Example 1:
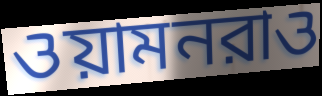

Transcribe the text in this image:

ওয়ামনরাও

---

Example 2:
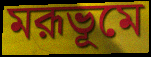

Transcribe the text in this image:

মরূভূমে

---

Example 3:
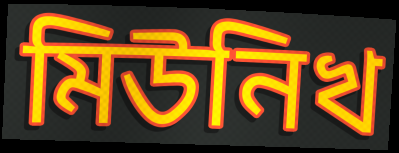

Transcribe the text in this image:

মিউনিখ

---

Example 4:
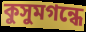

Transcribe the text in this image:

কুসুমগন্ধে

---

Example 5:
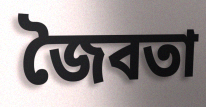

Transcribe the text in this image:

জৈবতা